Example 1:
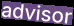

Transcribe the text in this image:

advisor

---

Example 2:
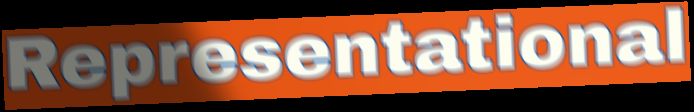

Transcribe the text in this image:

Representational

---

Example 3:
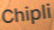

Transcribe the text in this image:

Chipli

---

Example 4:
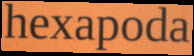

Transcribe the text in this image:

hexapoda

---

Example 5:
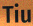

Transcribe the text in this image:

Tiu